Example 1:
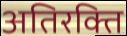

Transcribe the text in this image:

अतिरक्ति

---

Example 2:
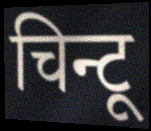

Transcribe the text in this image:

चिन्टू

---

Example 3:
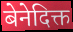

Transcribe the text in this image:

बेनेदिक्त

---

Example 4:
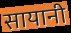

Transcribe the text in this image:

सायानी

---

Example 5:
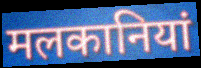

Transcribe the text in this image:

मलकानियां